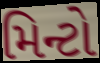
મિન્ટો